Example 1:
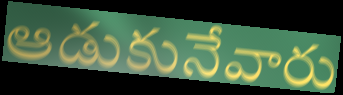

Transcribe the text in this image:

ఆడుకునేవారు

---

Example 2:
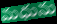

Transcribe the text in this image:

మధును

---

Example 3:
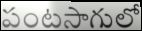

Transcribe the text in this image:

పంటసాగులో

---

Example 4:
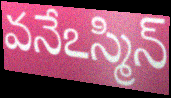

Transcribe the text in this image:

వనేఽస్మిన్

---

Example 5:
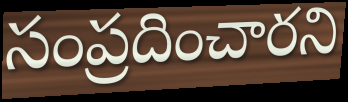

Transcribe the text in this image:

సంప్రదించారని